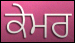
ਕੇਮਰ